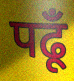
पढूँ